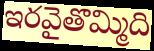
ఇరవైతొమ్మిది